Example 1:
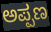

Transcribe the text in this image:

ಅಪ್ಪಣ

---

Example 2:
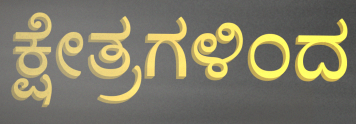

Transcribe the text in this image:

ಕ್ಷೇತ್ರಗಳಿಂದ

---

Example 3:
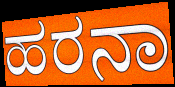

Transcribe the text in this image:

ಹರನಾ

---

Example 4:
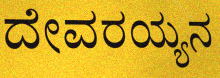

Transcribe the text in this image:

ದೇವರಯ್ಯನ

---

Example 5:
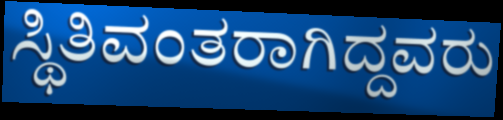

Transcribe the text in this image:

ಸ್ಥಿತಿವಂತರಾಗಿದ್ದವರು